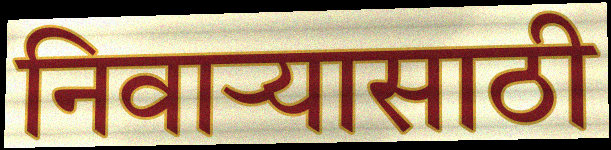
निवाऱ्यासाठी